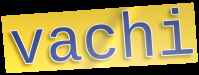
vachi